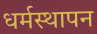
धर्मस्थापन